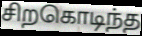
சிறகொடிந்த